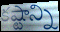
కష్టాన్ని